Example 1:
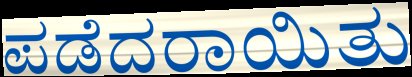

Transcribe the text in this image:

ಪಡೆದರಾಯಿತು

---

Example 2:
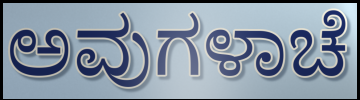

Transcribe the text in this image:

ಅವುಗಳಾಚೆ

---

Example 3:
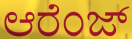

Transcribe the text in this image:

ಆರೆಂಜ್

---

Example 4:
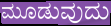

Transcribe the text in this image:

ಮೂಡುವುದು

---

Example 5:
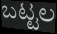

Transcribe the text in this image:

ಬಟ್ಟಲ